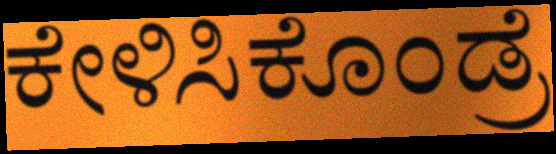
ಕೇಳಿಸಿಕೊಂಡ್ರೆ